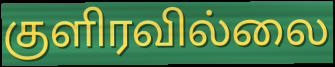
குளிரவில்லை